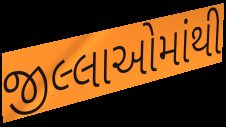
જીલ્લાઓમાંથી